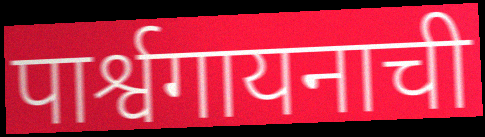
पार्श्वगायनाची